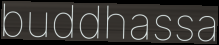
buddhassa